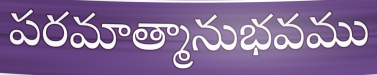
పరమాత్మానుభవము